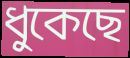
ধুকেছে